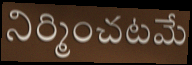
నిర్మించటమే